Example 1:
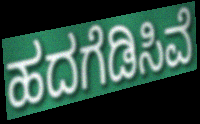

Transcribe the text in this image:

ಹದಗೆಡಿಸಿವೆ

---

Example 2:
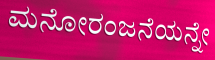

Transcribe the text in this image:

ಮನೋರಂಜನೆಯನ್ನೇ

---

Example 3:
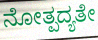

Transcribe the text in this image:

ನೋತ್ಪದ್ಯತೇ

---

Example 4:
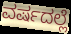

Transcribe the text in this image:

ವರ್ಷದಲ್ಲೆ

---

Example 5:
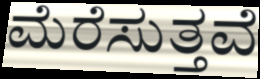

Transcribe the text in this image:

ಮೆರೆಸುತ್ತವೆ